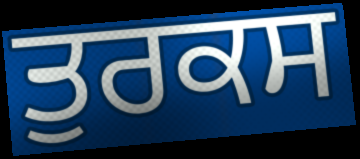
ਤੁਰਕਸ